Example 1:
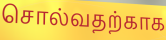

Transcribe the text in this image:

சொல்வதற்காக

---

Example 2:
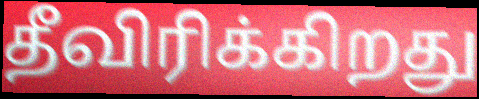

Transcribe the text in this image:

தீவிரிக்கிறது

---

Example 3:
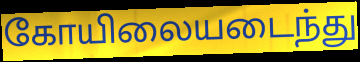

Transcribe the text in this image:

கோயிலையடைந்து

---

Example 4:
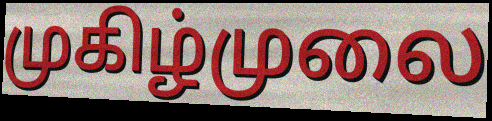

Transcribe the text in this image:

முகிழ்முலை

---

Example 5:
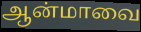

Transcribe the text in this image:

ஆன்மாவை